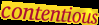
contentious